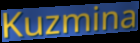
Kuzmina